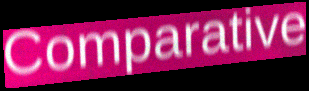
Comparative